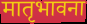
मातृभावना